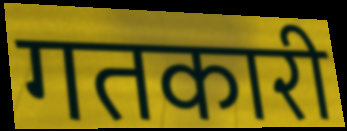
गतकारी